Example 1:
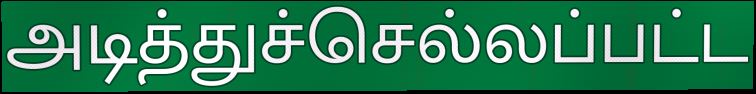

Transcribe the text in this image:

அடித்துச்செல்லப்பட்ட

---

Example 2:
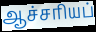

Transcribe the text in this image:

ஆச்சரியப்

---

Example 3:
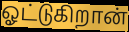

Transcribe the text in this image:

ஓட்டுகிறான்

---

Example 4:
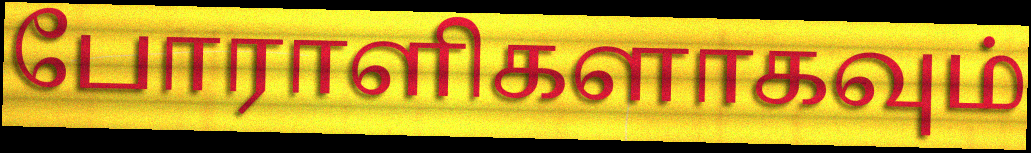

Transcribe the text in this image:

போராளிகளாகவும்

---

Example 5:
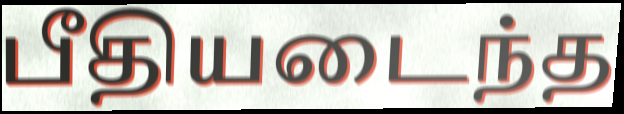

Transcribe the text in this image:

பீதியடைந்த